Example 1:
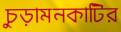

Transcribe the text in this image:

চুড়ামনকাটির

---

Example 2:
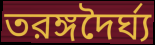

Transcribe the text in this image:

তরঙ্গদৈর্ঘ্য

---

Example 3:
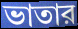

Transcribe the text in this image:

ভাতার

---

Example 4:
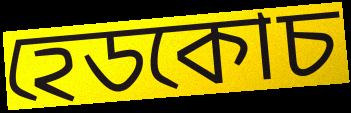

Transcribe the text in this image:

হেডকোচ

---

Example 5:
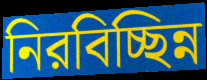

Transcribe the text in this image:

নিরবিচ্ছিন্ন